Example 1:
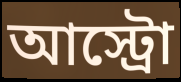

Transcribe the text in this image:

আস্ট্রো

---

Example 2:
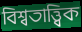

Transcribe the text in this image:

বিশ্বতাত্ত্বিক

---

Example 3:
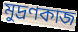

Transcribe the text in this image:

মুদ্রণকাজ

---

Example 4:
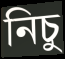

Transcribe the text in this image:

নিচু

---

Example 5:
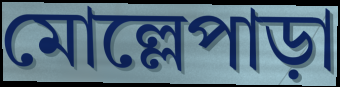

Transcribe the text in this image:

মোল্লেপাড়া